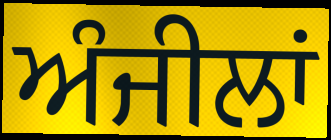
ਅੰਜੀਲਾਂ